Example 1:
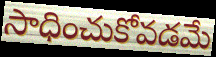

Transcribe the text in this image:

సాధించుకోవడమే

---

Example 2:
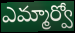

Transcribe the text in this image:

ఎమ్మార్వో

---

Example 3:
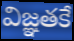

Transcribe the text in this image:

విజ్ఞతకే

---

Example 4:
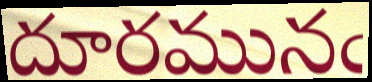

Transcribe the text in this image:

దూరమునఁ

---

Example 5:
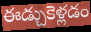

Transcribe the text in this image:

ఈడ్చుకెళ్లడం